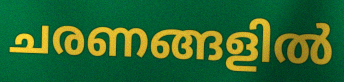
ചരണങ്ങളിൽ